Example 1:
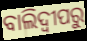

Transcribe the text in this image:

ବାଲିଦ୍ୱୀପରୁ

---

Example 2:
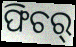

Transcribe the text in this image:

ଫିଚର୍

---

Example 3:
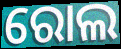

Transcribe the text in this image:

ରୋଲ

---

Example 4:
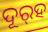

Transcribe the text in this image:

ଦୂର୍‌ହ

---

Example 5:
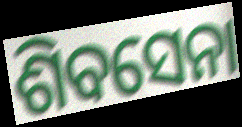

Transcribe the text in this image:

ଶିବସେନା